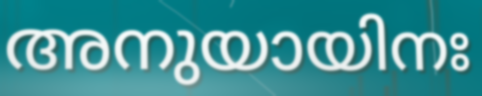
അനുയായിനഃ